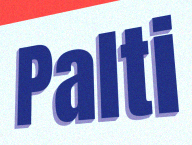
Palti